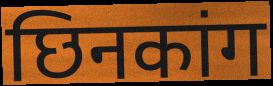
छिनकांग